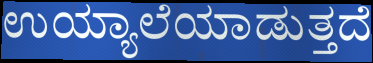
ಉಯ್ಯಾಲೆಯಾಡುತ್ತದೆ